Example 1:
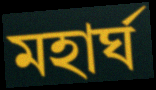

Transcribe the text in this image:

মহার্ঘ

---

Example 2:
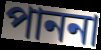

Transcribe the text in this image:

পাননা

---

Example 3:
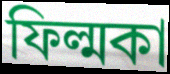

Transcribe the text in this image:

ফিল্মকা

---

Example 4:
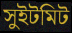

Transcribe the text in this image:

সুইটমিট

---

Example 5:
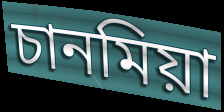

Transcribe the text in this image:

চানমিয়া